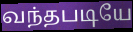
வந்தபடியே